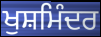
ਖੁਸ਼ਮਿੰਦਰ